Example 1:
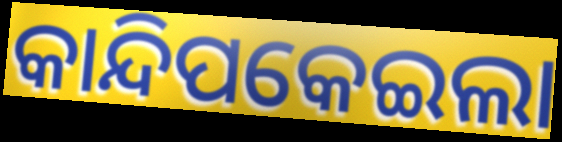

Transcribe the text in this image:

କାନ୍ଦିପକେଇଲା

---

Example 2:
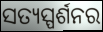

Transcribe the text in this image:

ସତ୍ୟସ୍ପର୍ଶନର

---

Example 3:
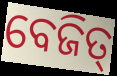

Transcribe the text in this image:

ବେଜିତ୍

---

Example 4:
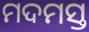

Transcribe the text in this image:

ମଦମସ୍ତ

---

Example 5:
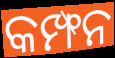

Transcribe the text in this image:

କମ୍ଫନ